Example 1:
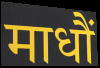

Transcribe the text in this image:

माधौं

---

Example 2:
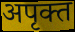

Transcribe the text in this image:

अपृक्त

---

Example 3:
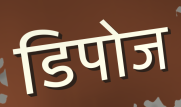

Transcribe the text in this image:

डिपोज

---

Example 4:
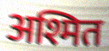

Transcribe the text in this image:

अश्मित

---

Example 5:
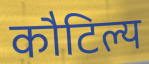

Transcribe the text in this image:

कौटिल्य